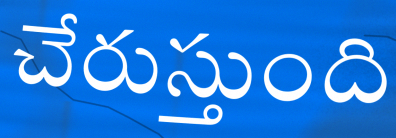
చేరుస్తుంది